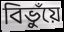
বিভুঁয়ে